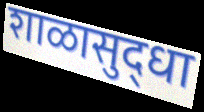
शाळासुद्धा